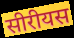
सीरीयस